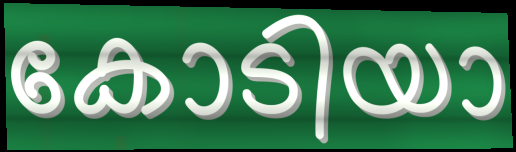
കോടിയാ